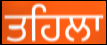
ਤਹਿਲਾ